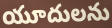
యూదులను